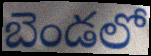
బెండలో